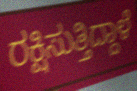
ರಕ್ಷಿಸುತ್ತಿದ್ದಾಳೆ